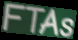
FTAs